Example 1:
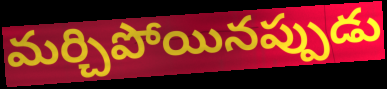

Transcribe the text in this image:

మర్చిపోయినప్పుడు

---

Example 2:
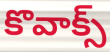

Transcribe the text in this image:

కొవాక్స్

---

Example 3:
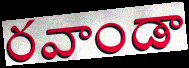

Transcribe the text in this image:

రవాండా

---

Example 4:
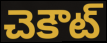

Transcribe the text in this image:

చెకౌట్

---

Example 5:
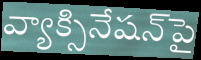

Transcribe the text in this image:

వ్యాక్సినేషన్‌పై